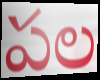
పల